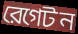
রেগেটন